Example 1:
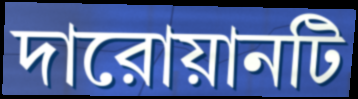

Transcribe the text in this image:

দারোয়ানটি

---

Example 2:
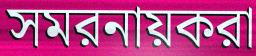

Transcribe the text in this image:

সমরনায়করা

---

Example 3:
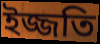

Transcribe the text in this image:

ইজ্জতি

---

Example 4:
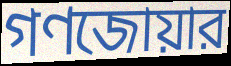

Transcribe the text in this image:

গণজোয়ার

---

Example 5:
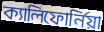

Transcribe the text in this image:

ক্যালিফোর্নিয়া